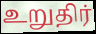
உறுதிர்